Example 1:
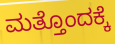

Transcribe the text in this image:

ಮತ್ತೊಂದಕ್ಕೆ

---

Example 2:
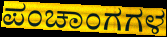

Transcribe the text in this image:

ಪಂಚಾಂಗಗಳ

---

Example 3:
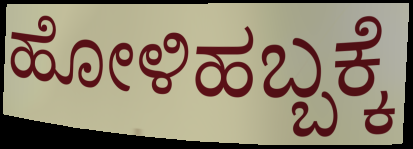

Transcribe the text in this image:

ಹೋಳಿಹಬ್ಬಕ್ಕೆ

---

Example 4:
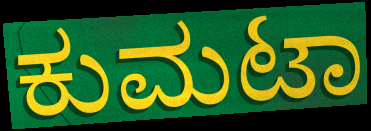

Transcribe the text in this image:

ಕುಮಟಾ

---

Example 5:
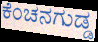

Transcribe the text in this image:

ಕೆಂಚನಗುಡ್ಡ